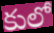
కులో